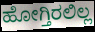
ಹೋಗ್ತಿರಲಿಲ್ಲ